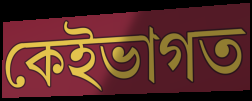
কেইভাগত